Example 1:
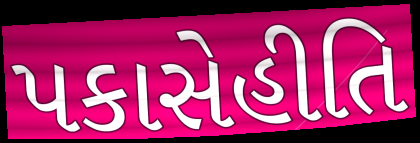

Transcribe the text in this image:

પકાસેહીતિ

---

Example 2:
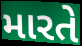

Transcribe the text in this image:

મારતે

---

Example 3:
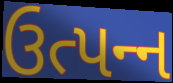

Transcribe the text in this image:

ઉત્પન્‍ન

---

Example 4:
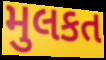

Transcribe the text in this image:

મુલકત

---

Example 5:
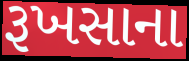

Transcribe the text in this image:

રૂખસાના